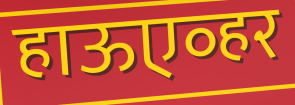
हाऊएव्हर